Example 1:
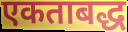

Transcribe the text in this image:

एकताबद्ध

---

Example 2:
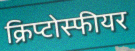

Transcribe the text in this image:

क्रिप्टोस्फीयर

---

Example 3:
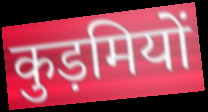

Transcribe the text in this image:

कुड़मियों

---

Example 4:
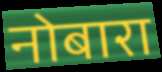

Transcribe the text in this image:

नोबारा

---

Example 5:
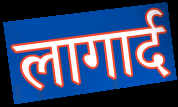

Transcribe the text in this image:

लागार्द